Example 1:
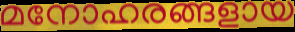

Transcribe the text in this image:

മനോഹരങ്ങളായ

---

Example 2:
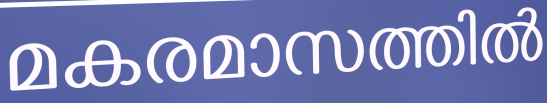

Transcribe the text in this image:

മകരമാസത്തിൽ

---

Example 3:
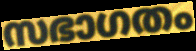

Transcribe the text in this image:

സഭാഗതം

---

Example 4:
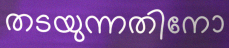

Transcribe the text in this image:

തടയുന്നതിനോ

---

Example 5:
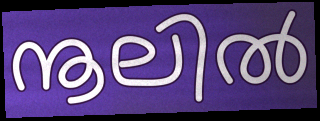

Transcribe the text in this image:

നൂലിൽ